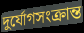
দুর্যোগসংক্রান্ত